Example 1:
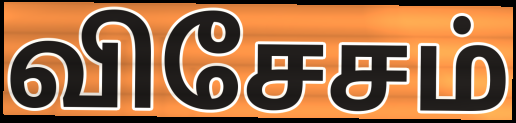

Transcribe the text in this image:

விசேசம்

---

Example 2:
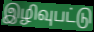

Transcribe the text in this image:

இழிவுபட்டு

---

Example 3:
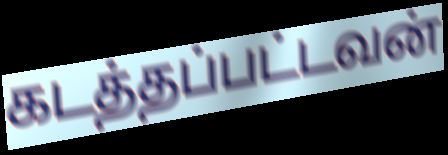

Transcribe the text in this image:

கடத்தப்பட்டவன்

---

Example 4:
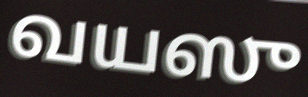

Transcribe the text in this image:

வயஸு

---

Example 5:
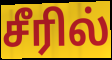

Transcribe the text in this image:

சீரில்